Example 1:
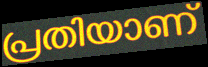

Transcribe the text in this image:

പ്രതിയാണ്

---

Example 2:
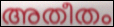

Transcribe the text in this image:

അതീതം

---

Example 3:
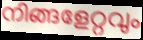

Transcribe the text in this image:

നിങ്ങളേറ്റവും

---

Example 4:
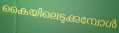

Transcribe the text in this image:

കൈയിലെടുക്കുമ്പോൾ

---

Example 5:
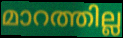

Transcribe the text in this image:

മാറത്തില്ല